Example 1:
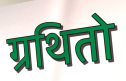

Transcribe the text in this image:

ग्रथितो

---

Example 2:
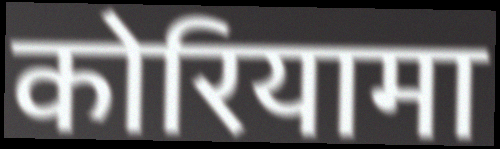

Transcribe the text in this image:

कोरियामा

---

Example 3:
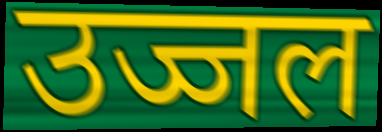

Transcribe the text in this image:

उज्जल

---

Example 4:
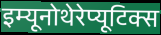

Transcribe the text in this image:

इम्यूनोथेरेप्यूटिक्स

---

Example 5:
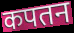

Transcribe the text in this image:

कपतन